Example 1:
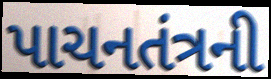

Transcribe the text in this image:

પાચનતંત્રની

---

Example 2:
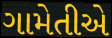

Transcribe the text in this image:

ગામેતીએ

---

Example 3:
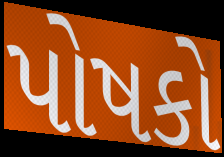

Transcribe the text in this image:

પોષકો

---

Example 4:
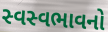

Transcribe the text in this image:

સ્વસ્વભાવનો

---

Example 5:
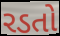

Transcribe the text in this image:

રડતો